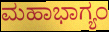
ಮಹಾಭಾಗ್ಯಂ